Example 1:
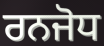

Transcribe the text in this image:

ਰਨਜੋਧ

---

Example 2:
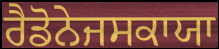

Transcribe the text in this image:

ਰੈਡੋਨੇਜਸਕਾਯਾ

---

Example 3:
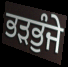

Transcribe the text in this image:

ਭੜਭੁੰਜੇ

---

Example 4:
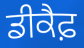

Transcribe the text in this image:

ਡੀਕੈਫ਼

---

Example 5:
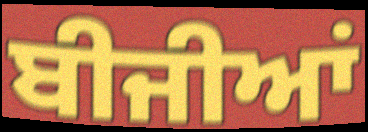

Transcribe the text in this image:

ਬੀਜੀਆਂ